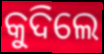
କୁଦିଲେ